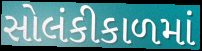
સોલંકીકાળમાં